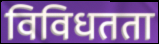
विविधतता